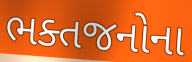
ભક્તજનોના